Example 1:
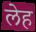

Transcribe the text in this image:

लेह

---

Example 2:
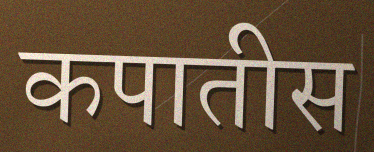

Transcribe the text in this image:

कपातीस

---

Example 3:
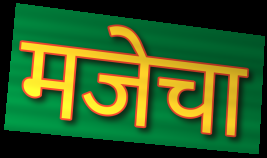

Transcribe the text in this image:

मजेचा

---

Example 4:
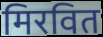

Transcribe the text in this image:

मिरवित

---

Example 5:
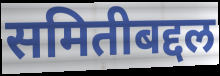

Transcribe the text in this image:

समितीबद्दल